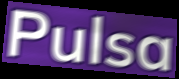
Pulsa